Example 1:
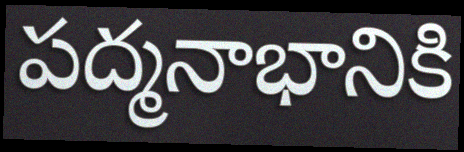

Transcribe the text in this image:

పద్మనాభానికి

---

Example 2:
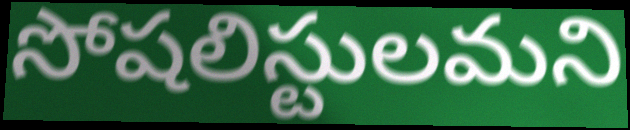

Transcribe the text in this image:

సోషలిస్టులమని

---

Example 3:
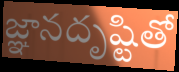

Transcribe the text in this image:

జ్ఞానదృష్టితో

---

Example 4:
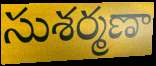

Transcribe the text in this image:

సుశర్మణా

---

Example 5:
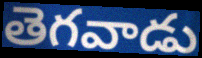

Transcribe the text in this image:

తెగవాడు